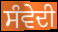
ਸੰਵੇਦੀ